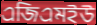
এজিএমইউ